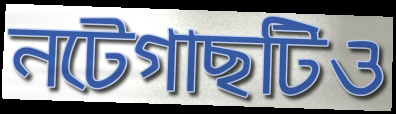
নটেগাছটিও